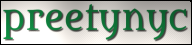
preetynyc